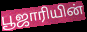
பூஜாரியின்